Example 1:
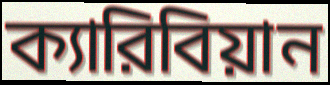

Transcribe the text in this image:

ক্যারিবিয়ান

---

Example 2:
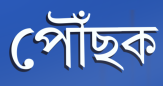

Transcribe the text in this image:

পৌঁছক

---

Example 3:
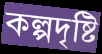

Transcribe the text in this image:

কল্পদৃষ্টি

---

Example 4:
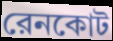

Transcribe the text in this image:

রেনকোট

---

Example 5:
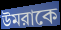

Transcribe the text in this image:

উমরাকে